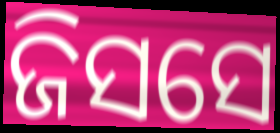
ଜିସସେ